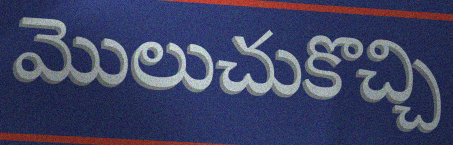
మొలుచుకొచ్చి